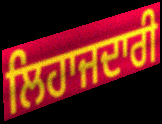
ਲਿਹਾਜਦਾਰੀ